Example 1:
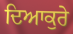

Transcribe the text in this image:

ਦਿਆਕੁਰੇ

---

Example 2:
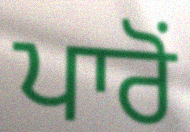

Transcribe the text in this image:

ਪਾਰੋਂ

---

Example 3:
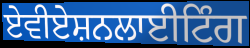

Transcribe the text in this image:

ਏਵੀਏਸ਼ਨਲਾਈਟਿੰਗ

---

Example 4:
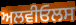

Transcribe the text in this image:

ਅਲਵੀਓਲਸ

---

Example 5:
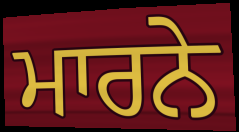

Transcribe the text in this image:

ਮਾਰਨੇ